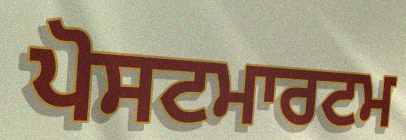
ਪੋਸਟਮਾਰਟਮ